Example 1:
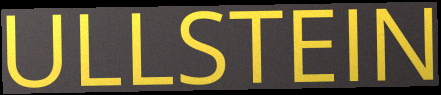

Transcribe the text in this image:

ULLSTEIN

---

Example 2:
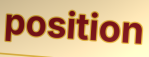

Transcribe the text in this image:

position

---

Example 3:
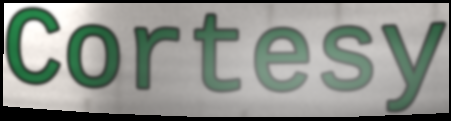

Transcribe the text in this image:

Cortesy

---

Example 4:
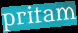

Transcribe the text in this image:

pritam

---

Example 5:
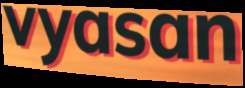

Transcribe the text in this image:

vyasan